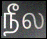
நீல